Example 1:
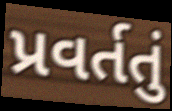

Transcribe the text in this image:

પ્રવર્તતું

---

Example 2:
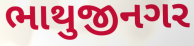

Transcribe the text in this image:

ભાથુજીનગર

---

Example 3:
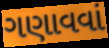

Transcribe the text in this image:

ગણાવવાં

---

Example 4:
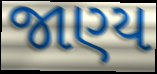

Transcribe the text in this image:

જાણ્ય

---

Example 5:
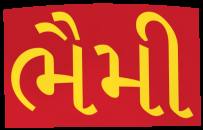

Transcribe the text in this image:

ભૈમી